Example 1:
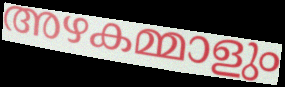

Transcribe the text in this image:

അഴകമ്മാളും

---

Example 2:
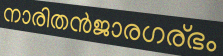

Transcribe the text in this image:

നാരിതൻജാരഗര്ഭം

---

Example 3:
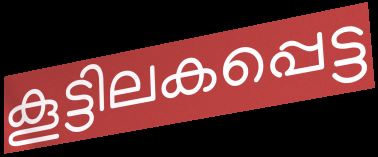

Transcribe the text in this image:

കൂട്ടിലകപ്പെട്ട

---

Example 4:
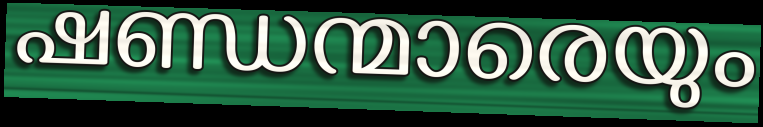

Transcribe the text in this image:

ഷണ്ഡന്മാരെയും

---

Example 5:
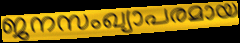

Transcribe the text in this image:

ജനസംഖ്യാപരമായ